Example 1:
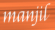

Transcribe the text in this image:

manjil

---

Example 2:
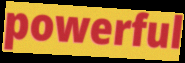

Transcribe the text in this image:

powerful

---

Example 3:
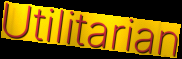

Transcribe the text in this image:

Utilitarian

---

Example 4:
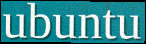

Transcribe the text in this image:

ubuntu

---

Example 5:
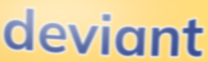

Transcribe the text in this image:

deviant